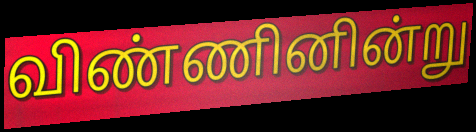
விண்ணினின்று